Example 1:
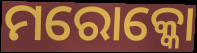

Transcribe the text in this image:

ମରୋକ୍କୋ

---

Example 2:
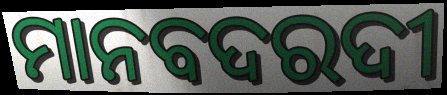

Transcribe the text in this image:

ମାନବଦରଦୀ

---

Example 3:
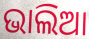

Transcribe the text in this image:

ଭାଲିଆ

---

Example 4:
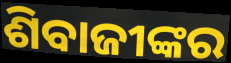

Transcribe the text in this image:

ଶିବାଜୀଙ୍କର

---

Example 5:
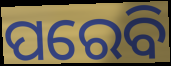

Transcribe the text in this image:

ପରେବି